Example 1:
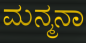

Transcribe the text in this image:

ಮನ್ಮನಾ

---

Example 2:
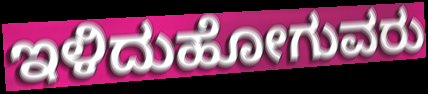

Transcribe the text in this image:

ಇಳಿದುಹೋಗುವರು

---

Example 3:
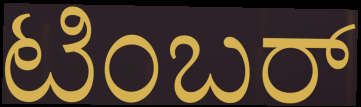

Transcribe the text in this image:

ಟಿಂಬರ್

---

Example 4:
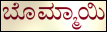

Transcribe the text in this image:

ಬೊಮ್ಮಾಯಿ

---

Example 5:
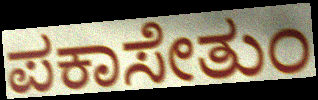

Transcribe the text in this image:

ಪಕಾಸೇತುಂ